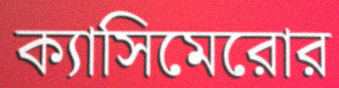
ক্যাসিমেরোর